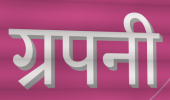
ग्रपनी